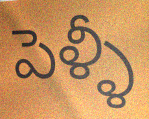
పెళ్ళీ